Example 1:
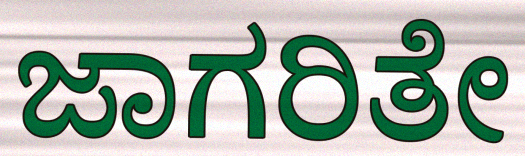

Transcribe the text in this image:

ಜಾಗರಿತೇ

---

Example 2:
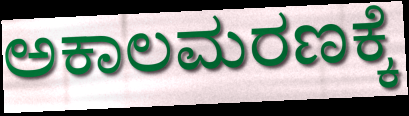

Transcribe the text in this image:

ಅಕಾಲಮರಣಕ್ಕೆ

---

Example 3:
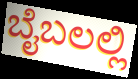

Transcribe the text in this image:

ಬೈಬಲಲ್ಲಿ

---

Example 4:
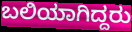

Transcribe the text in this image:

ಬಲಿಯಾಗಿದ್ದರು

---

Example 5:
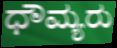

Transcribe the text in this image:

ಧೌಮ್ಯರು